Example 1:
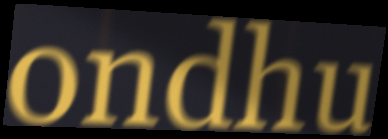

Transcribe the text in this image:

ondhu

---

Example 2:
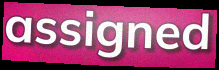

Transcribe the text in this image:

assigned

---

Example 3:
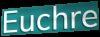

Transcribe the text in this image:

Euchre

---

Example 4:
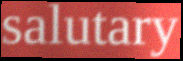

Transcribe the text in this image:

salutary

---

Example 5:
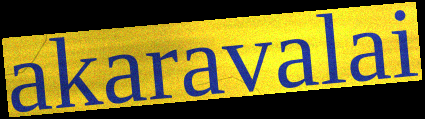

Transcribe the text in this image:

akaravalai